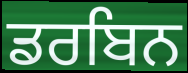
ਡਰਬਿਨ